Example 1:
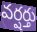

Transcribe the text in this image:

వర్షర్తు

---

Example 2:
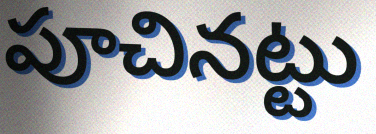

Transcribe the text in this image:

పూచినట్టు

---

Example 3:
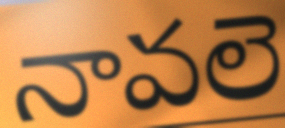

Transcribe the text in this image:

నావలె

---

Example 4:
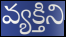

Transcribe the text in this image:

వ్యక్తిని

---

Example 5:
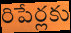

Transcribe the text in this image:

రిపేర్లకు